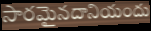
సారమైనదానియందు